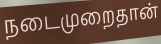
நடைமுறைதான்